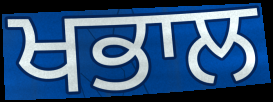
ਖਭਾਲ